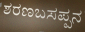
ಶರಣಬಸಪ್ಪನ